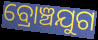
ବ୍ରୋଞ୍ଚଯୁଗ